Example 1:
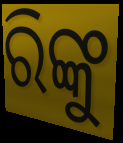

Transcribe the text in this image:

ରିଙ୍କୁ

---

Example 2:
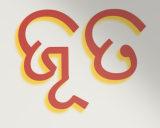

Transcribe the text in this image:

ଜୂତ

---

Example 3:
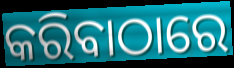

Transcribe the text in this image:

କରିବାଠାରେ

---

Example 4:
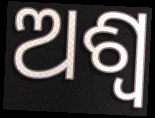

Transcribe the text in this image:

ଅଶ୍ବ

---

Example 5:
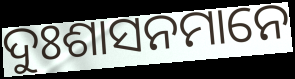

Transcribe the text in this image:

ଦୁଃଶାସନମାନେ